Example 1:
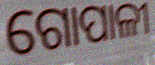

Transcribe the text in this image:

ଗୋପାଳୀ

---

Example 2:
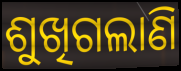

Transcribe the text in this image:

ଶୁଖିଗଲାଣି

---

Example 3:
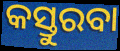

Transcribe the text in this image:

କସ୍ତୁରବା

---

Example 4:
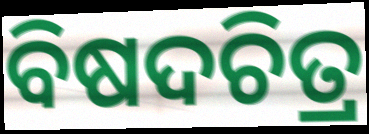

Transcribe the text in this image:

ବିଷଦଚିତ୍ର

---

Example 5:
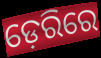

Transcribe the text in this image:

ଡ଼େରିରେ